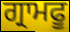
ਗ੍ਰਾਮਫੂ